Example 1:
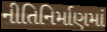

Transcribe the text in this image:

નીતિનિર્માણમાં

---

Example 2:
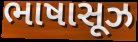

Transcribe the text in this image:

ભાષાસૂઝ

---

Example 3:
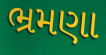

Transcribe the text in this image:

ભ્રમણા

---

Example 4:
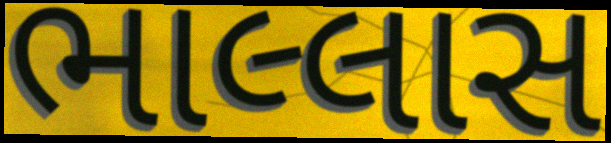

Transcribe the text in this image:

ભાલ્લાસ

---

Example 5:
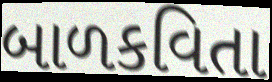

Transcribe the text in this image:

બાળકવિતા